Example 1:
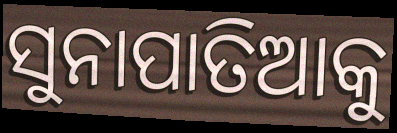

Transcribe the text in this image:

ସୁନାପାତିଆକୁ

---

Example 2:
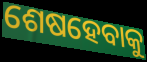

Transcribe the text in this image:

ଶେଷହେବାକୁ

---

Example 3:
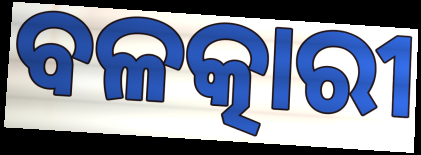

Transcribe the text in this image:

ବଳତ୍କାରୀ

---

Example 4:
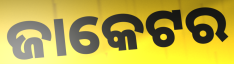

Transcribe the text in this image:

ଜାକେଟର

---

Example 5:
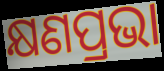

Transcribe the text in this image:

କ୍ଷଣପ୍ରଭା